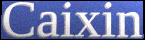
Caixin